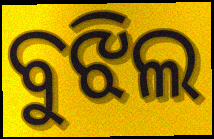
ବୁଝିଲ